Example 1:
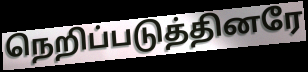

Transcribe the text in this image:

நெறிப்படுத்தினரே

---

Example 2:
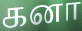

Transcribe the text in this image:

கனா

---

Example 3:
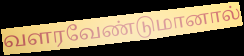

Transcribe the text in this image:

வளரவேண்டுமானால்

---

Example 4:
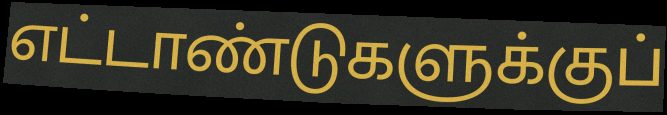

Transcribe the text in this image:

எட்டாண்டுகளுக்குப்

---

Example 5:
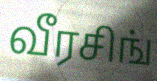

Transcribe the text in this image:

வீரசிங்